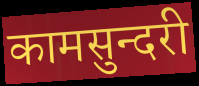
कामसुन्दरी